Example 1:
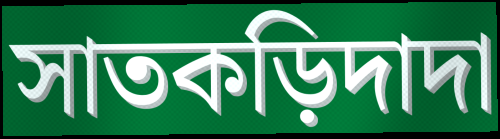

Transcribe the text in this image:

সাতকড়িদাদা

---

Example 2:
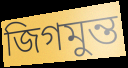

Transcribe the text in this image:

জিগমুন্ত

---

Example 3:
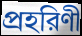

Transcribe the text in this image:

প্রহরিণী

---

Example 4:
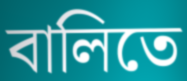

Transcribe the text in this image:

বালিতে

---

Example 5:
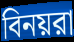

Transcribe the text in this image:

বিনয়রা